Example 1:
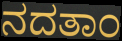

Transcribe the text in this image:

ನದತಾಂ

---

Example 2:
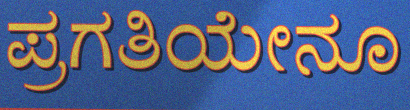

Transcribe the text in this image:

ಪ್ರಗತಿಯೇನೂ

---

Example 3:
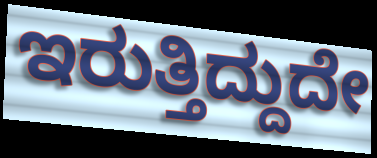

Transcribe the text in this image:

ಇರುತ್ತಿದ್ದುದೇ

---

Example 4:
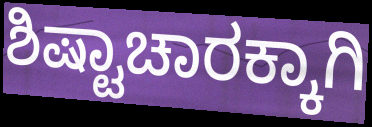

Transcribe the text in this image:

ಶಿಷ್ಟಾಚಾರಕ್ಕಾಗಿ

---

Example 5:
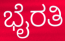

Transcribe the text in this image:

ಭೈರತಿ